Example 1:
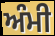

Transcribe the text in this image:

ਅੰਮੀ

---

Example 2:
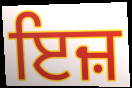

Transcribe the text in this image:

ਇਜ਼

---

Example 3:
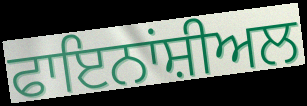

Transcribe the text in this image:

ਫਾਇਨਾਂਸ਼ੀਅਲ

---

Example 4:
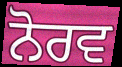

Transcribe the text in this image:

ਨੋਰਵ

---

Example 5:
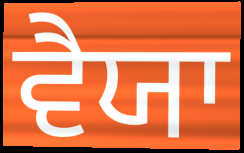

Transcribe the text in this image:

ਵੈਯਾ